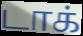
டாக்